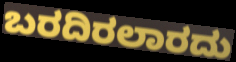
ಬರದಿರಲಾರದು